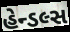
હેન્ડલ્સ